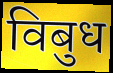
विबुध